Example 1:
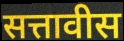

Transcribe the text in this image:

सत्तावीस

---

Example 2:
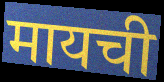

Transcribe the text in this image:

मायची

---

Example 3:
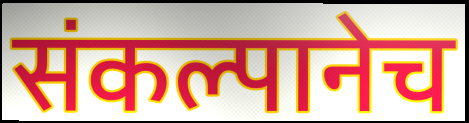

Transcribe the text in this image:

संकल्पानेच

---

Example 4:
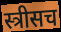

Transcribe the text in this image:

स्त्रीसच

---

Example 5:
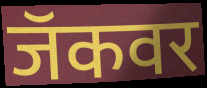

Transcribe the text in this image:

जॅकवर